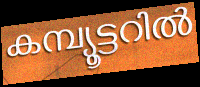
കമ്പ്യൂട്ടറിൽ